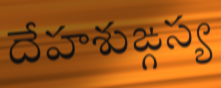
దేహశుఙ్గస్య